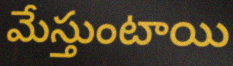
మేస్తుంటాయి